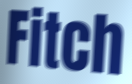
Fitch